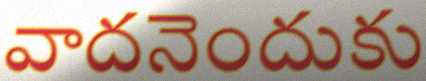
వాదనెందుకు